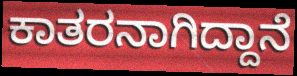
ಕಾತರನಾಗಿದ್ದಾನೆ